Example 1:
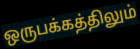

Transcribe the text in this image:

ஒருபக்கத்திலும்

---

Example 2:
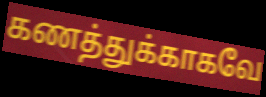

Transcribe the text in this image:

கணத்துக்காகவே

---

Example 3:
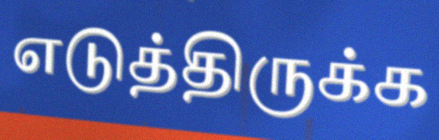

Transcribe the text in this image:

எடுத்திருக்க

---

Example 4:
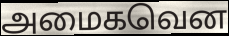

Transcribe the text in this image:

அமைகவென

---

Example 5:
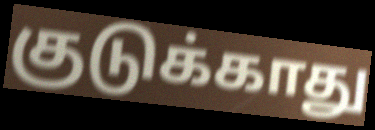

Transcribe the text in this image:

குடுக்காது